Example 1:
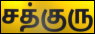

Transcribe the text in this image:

சத்குரு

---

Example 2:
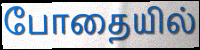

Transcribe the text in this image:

போதையில்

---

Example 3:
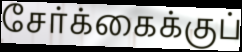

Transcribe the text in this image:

சேர்க்கைக்குப்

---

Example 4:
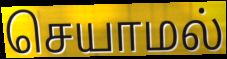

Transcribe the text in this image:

செயாமல்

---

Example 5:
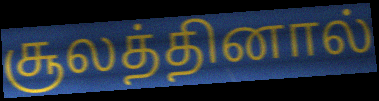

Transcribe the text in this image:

சூலத்தினால்